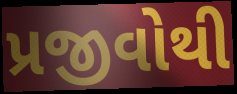
પ્રજીવોથી